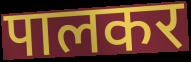
पालकर